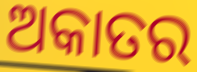
ଅକାତର